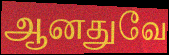
ஆனதுவே